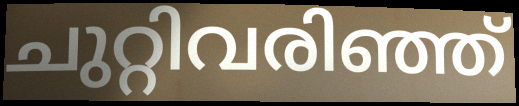
ചുറ്റിവരിഞ്ഞ്